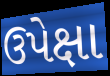
ઉપેક્ષા